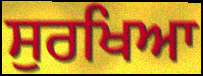
ਸੁਰਖਿਆ